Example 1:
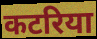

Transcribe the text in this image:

कटरिया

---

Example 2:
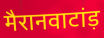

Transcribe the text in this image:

मैरानवाटांड़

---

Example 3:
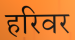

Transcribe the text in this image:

हरिवर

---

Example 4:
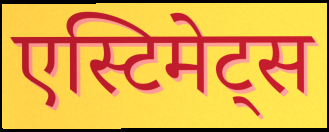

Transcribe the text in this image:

एस्टिमेट्स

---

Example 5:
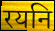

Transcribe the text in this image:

रयनि